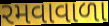
રમવાવાળા